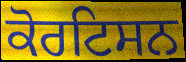
ਕੋਰਟਿਸਨ